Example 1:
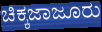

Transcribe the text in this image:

ಚಿಕ್ಕಜಾಜೂರು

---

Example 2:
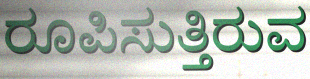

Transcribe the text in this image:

ರೂಪಿಸುತ್ತಿರುವ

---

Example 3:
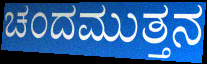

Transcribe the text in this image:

ಚಂದಮುತ್ತನ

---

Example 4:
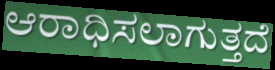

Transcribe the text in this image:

ಆರಾಧಿಸಲಾಗುತ್ತದೆ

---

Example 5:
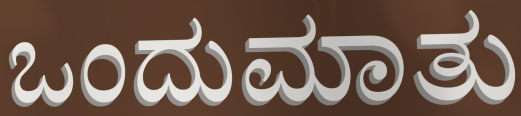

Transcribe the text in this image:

ಒಂದುಮಾತು